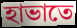
হাভাতে